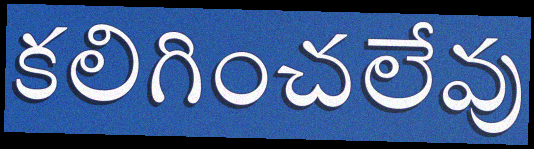
కలిగించలేవు